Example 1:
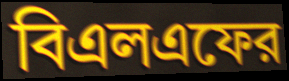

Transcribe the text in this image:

বিএলএফের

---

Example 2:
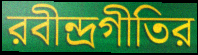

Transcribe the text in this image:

রবীন্দ্রগীতির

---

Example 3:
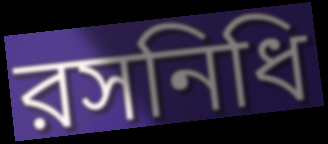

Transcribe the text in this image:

রসনিধি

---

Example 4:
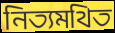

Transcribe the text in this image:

নিত্যমথিত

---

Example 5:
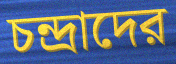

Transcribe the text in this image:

চন্দ্রাদের